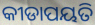
କୀଡାପୟତି